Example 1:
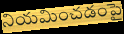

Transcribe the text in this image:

నియమించడంపై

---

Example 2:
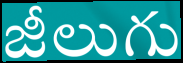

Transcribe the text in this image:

జీలుగు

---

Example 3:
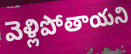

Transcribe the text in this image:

వెళ్లిపోతాయని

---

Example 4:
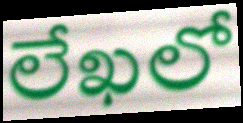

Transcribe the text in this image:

లేఖలో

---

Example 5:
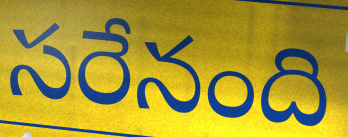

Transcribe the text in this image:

సరేనంది